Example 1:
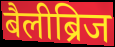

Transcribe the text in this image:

बैलीब्रिज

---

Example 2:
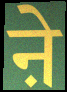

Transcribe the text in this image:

ऩे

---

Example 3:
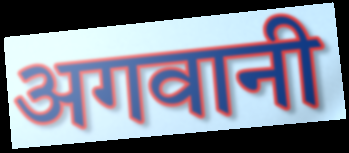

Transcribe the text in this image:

अगवानी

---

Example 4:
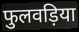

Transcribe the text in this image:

फुलवड़िया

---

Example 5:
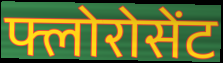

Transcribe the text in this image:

फ्लोरोसेंट